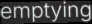
emptying